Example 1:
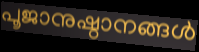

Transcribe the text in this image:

പൂജാനുഷ്ഠാനങ്ങൾ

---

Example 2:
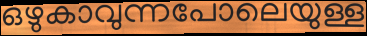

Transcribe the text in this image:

ഒഴുകാവുന്നപോലെയുള്ള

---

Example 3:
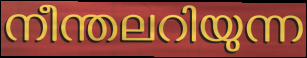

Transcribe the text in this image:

നീന്തലറിയുന്ന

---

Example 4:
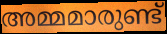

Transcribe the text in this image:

അമ്മമാരുണ്ട്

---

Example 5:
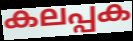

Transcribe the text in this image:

കലപ്പക